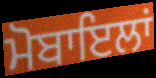
ਮੋਬਾਇਲਾਂ